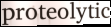
proteolytic